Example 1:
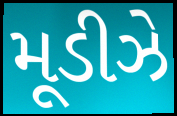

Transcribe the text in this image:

મૂડીઝે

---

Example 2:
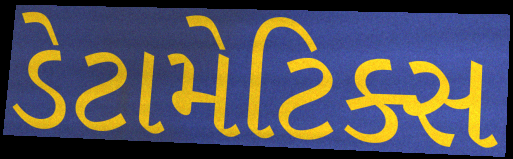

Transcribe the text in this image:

ડેટામેટિક્સ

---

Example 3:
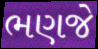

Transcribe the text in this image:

ભણજે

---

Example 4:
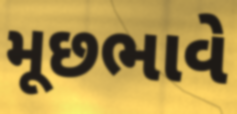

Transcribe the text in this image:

મૂછભાવે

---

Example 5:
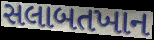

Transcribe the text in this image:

સલાબતખાન